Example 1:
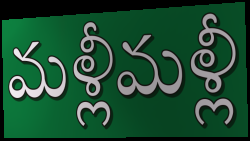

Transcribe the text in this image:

మళ్లీమళ్లీ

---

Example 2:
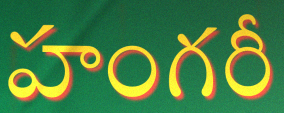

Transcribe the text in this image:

హంగరీ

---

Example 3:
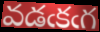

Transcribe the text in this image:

వడఁకఁగ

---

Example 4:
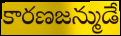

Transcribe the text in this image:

కారణజన్ముడే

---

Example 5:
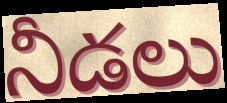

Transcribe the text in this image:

నీడలు